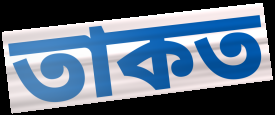
তাকত